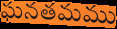
ఘనతమము